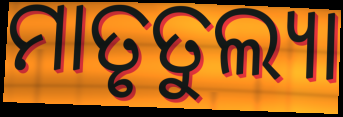
ମାତୃତୁଲ୍ୟା